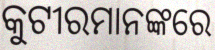
କୁଟୀରମାନଙ୍କରେ